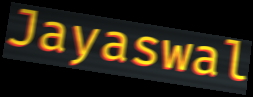
Jayaswal